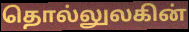
தொல்லுலகின்